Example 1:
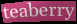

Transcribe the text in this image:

teaberry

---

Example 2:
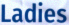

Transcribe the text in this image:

Ladies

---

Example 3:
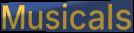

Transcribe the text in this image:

Musicals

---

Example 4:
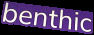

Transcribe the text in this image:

benthic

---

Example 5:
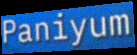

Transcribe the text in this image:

Paniyum